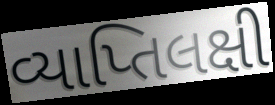
વ્યાપ્તિલક્ષી